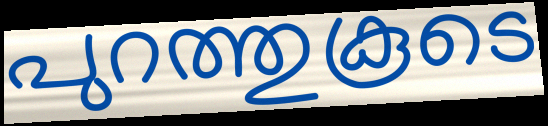
പുറത്തുകൂടെ